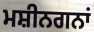
ਮਸ਼ੀਨਗਨਾਂ